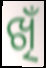
ଖିଁ